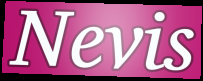
Nevis